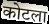
कोटला